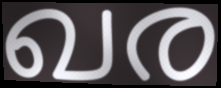
ഖര